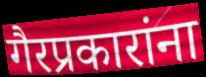
गैरप्रकारांना